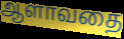
ஆளாவதை